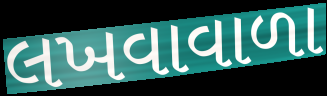
લખવાવાળા